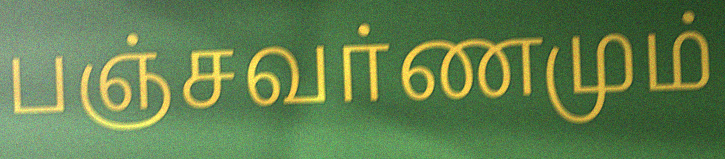
பஞ்சவர்ணமும்